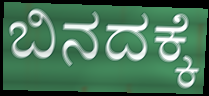
ಬಿನದಕ್ಕೆ